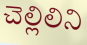
చెల్లిలిని